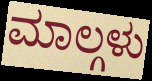
ಮಾಲ್ಗಳು